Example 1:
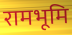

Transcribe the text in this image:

रामभूमि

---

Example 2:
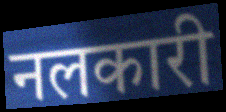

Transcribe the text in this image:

नलकारी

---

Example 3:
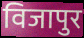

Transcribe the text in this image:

विजापुर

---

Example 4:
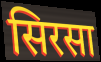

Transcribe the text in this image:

सिरसा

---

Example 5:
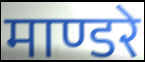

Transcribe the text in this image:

माण्डरे